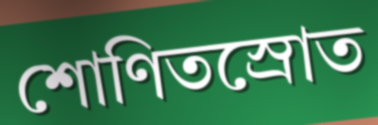
শোণিতস্রোত